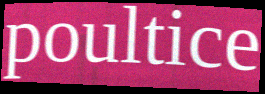
poultice